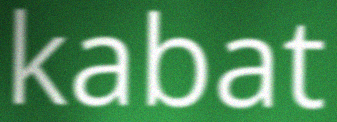
kabat